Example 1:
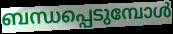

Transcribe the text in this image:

ബന്ധപ്പെടുമ്പോൾ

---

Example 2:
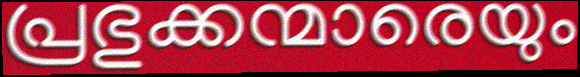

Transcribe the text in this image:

പ്രഭുക്കന്മാരെയും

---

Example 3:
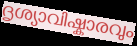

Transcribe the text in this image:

ദൃശ്യാവിഷ്കാരവും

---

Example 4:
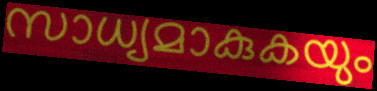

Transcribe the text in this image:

സാധ്യമാകുകയും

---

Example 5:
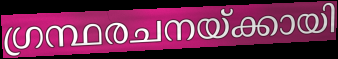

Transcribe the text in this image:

ഗ്രന്ഥരചനയ്ക്കായി